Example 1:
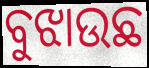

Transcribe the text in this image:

ବୁଝାଉଛ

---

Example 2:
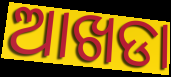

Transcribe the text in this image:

ଆଖଡା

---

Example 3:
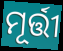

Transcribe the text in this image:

ମୂର୍ତ୍ତୀ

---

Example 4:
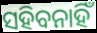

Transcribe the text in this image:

ସହିବନାହିଁ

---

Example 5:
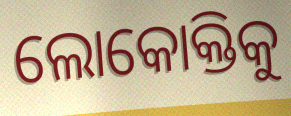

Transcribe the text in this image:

ଲୋକୋକ୍ତିକୁ